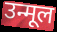
उन्मूल